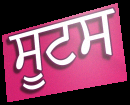
ਸੂਟਸ